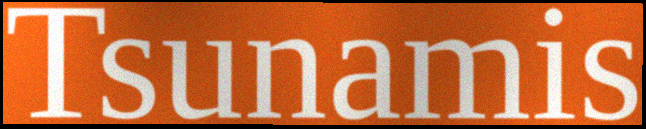
Tsunamis